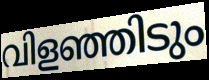
വിളഞ്ഞിടും